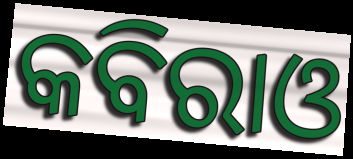
କବିରାଓ